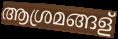
ആശ്രമങ്ങള്